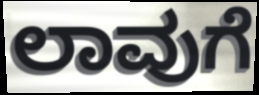
ಲಾವುಗೆ